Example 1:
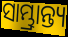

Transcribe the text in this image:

ସାମ୍ଭ୍ରାନ୍ତ୍ୟ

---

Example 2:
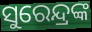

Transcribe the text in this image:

ସୁରେନ୍ଦ୍ରଙ୍କ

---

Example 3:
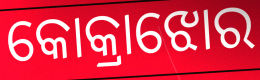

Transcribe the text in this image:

କୋକ୍ରାଝୋର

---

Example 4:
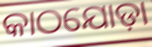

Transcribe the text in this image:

କାଠଯୋଡ଼ା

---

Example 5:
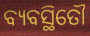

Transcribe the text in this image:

ବ୍ୟବସ୍ଥିତୌ